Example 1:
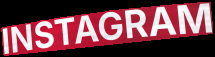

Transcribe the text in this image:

INSTAGRAM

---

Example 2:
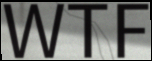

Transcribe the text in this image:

WTF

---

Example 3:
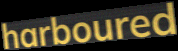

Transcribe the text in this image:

harboured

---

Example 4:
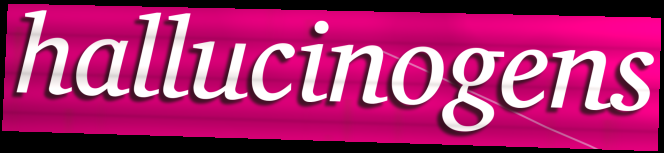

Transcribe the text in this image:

hallucinogens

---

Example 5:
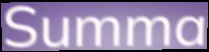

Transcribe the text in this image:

Summa